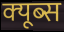
क्यूब्स